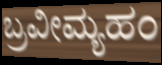
ಬ್ರವೀಮ್ಯಹಂ